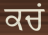
ਕਚਂ